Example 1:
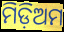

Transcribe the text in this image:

ମିଡ଼ିଅମ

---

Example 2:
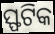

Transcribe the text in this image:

ସ୍ଫଟିକ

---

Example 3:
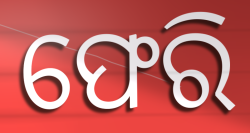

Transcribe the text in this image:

ଫେରି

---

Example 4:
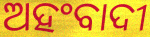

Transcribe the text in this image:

ଅହଂବାଦୀ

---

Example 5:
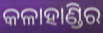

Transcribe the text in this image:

କଳାହାଣ୍ଡିର